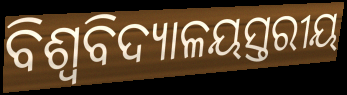
ବିଶ୍ଵବିଦ୍ୟାଳୟସ୍ତରୀୟ